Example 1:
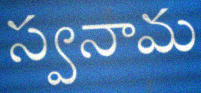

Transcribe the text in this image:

స్వనామ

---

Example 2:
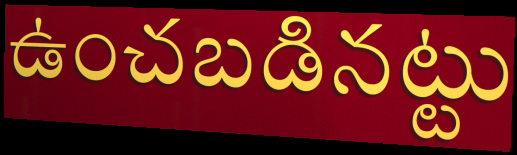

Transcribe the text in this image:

ఉంచబడినట్టు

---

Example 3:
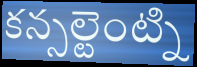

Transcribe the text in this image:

కన్సల్టెంట్ని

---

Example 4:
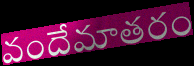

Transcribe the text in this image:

వందేమాతరం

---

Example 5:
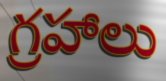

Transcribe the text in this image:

గ్రహాలు